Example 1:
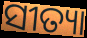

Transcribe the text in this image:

ସୀତ୍ୟା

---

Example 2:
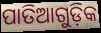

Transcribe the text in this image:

ପାତିଆଗୁଡ଼ିକ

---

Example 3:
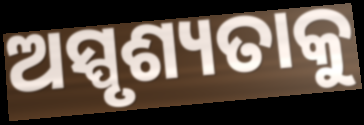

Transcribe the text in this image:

ଅସ୍ପୃଶ୍ୟତାକୁ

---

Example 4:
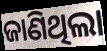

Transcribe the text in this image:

ଜାଣିଥିଲା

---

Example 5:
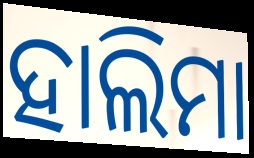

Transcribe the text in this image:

ହାଲିମା